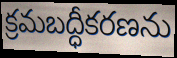
క్రమబద్ధీకరణను